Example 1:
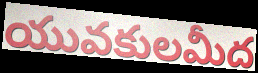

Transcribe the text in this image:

యువకులమీద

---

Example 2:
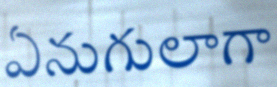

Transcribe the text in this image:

ఏనుగులాగా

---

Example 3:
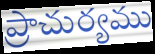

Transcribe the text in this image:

ప్రాచుర్యము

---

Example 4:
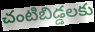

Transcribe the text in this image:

చంటిబిడ్డలకు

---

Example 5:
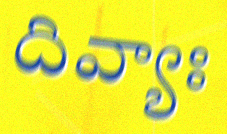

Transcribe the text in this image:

దివ్యాః